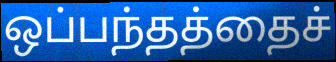
ஒப்பந்தத்தைச்